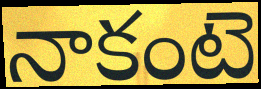
నాకంటె